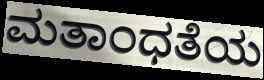
ಮತಾಂಧತೆಯ